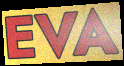
EVA